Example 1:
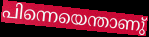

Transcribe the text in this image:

പിന്നെയെന്താണു്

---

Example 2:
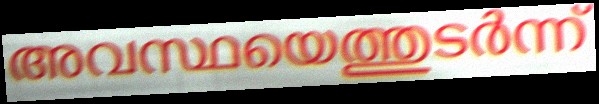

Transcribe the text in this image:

അവസ്ഥയെത്തുടർന്ന്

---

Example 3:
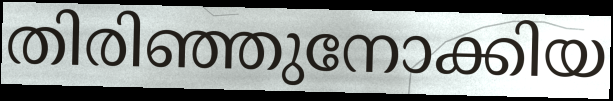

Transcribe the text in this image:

തിരിഞ്ഞുനോക്കിയ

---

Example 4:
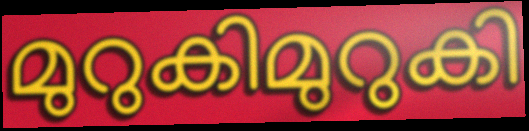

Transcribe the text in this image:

മുറുകിമുറുകി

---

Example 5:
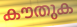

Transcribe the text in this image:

കൗതുക